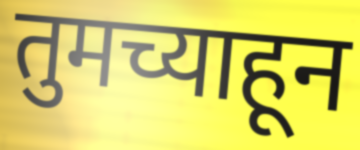
तुमच्याहून